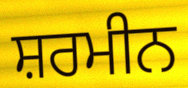
ਸ਼ਰਮੀਨ